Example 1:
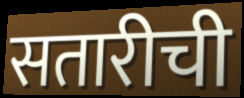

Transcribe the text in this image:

सतारीची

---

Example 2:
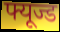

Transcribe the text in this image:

फ्यूज्ड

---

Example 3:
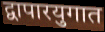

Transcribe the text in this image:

द्वापारयुगात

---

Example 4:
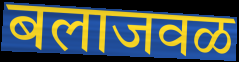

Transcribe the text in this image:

बलाजवळ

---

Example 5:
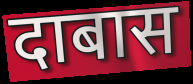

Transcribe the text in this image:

दाबास